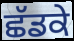
ਛੱਡਕੇ